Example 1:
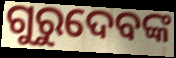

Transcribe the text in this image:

ଗୁରୁଦେବଙ୍କ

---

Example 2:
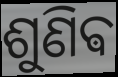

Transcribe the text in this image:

ଶୁଣିଵ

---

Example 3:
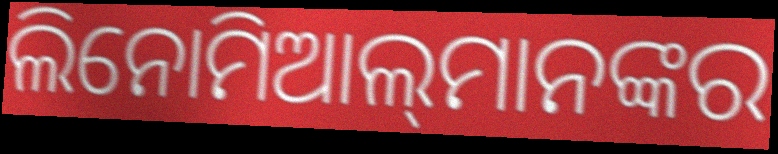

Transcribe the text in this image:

ଲିନୋମିଆଲ୍‌ମାନଙ୍କର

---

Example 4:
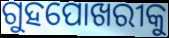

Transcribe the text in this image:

ଗୁହପୋଖରୀକୁ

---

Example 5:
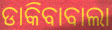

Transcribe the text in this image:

ଡାକିବାବାଲା